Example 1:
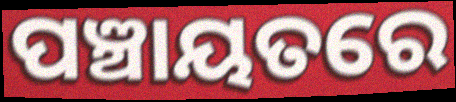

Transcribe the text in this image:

ପଞ୍ଚାୟତରେ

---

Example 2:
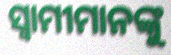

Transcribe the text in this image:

ସ୍ଵାମୀମାନଙ୍କୁ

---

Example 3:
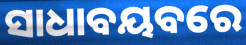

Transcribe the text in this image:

ସାଧାବୟବରେ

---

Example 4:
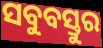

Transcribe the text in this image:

ସବୁବସ୍ତୁର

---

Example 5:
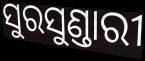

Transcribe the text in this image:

ସୁରସୁଣ୍ଡାରୀ